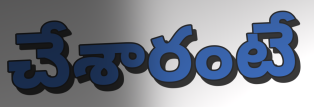
చేశారంటే